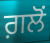
ਗ਼ਲੋਂ